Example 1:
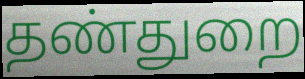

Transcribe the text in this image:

தண்துறை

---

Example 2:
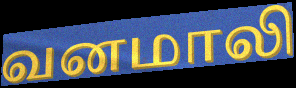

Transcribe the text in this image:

வனமாலி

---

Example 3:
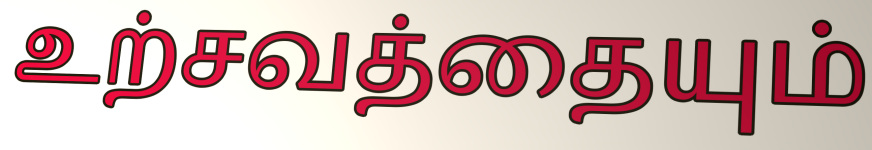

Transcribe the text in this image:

உற்சவத்தையும்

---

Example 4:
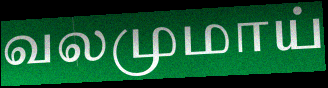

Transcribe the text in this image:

வலமுமாய்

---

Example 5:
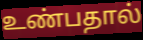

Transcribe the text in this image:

உண்பதால்